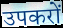
उपकरों